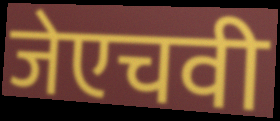
जेएचवी